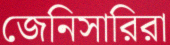
জেনিসারিরা